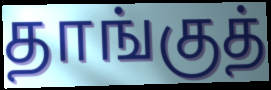
தாங்குத்